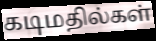
கடிமதில்கள்